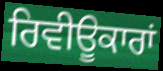
ਰਿਵੀਊਕਾਰਾਂ